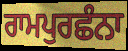
ਰਾਮਪੁਰਛੰਨਾ